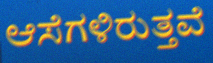
ಆಸೆಗಳಿರುತ್ತವೆ